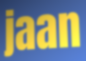
jaan